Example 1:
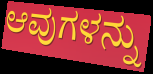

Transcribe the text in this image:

ಆವುಗಳನ್ನು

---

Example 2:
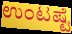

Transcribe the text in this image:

ಉಂಟಷ್ಟೆ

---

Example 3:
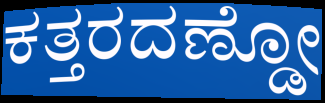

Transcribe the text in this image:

ಕತ್ತರದಣ್ಡೋ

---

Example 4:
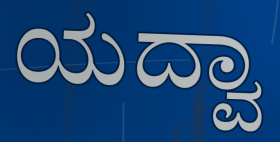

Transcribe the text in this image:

ಯದ್ವಾ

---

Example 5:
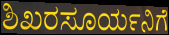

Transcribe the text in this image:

ಶಿಖರಸೂರ್ಯನಿಗೆ